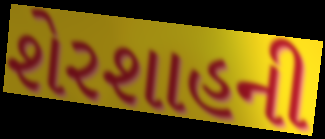
શેરશાહની